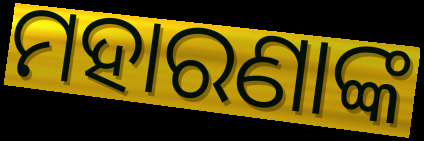
ମହାରଣାଙ୍କ